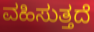
ವಹಿಸುತ್ತದೆ